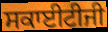
ਸਕਾਈਟੀਜੀ